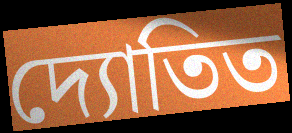
দ্যোতিত